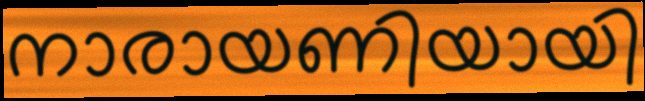
നാരായണിയായി